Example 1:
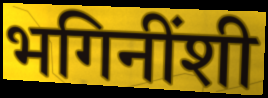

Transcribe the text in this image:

भगिनींशी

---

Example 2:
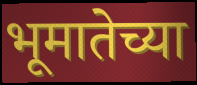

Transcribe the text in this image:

भूमातेच्या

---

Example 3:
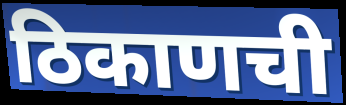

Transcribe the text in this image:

ठिकाणची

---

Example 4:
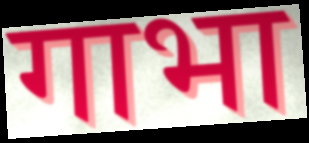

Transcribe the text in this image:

गाभा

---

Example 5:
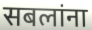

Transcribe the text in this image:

सबलांना